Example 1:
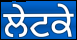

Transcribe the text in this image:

ਲੇਟਕੇ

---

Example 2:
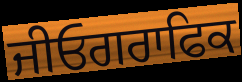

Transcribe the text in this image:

ਜੀਓਗਰਾਫਿਕ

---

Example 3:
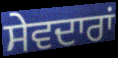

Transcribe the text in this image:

ਸੇਵਦਾਰਾਂ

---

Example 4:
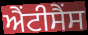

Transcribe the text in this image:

ਐਂਟੀਸੈਂਸ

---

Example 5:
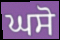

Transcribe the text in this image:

ਘਸੋ